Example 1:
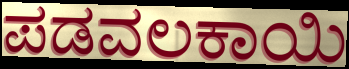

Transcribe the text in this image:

ಪಡವಲಕಾಯಿ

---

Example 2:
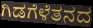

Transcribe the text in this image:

ಗಿಡಗೆಳೆತನದ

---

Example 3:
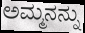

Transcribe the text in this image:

ಅಮ್ಮನನ್ನು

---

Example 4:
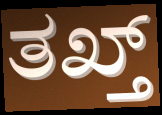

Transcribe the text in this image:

ತಖ್ತ್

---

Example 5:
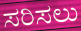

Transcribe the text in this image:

ಸರಿಸಲು